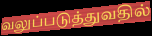
வலுப்படுத்துவதில்